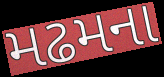
મઢમના